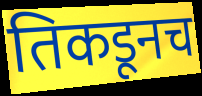
तिकडूनच